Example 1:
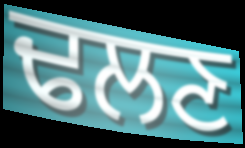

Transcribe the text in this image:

ਢਲਣ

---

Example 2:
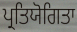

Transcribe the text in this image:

ਪ੍ਰਤਿਯੋਗਿਤਾ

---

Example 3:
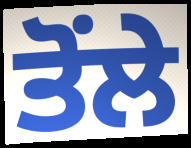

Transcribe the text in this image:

ਤੋਂਲੇ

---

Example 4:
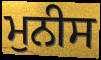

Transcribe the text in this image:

ਮੁਨੀਸ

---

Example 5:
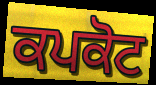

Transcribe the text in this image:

ਕਪਕੋਟ